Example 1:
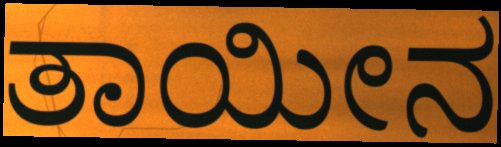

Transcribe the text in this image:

ತಾಯೀನ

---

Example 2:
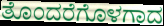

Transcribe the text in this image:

ತೊಂದರೆಗೊಳಗಾದ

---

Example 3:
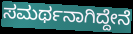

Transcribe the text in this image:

ಸಮರ್ಥನಾಗಿದ್ದೇನೆ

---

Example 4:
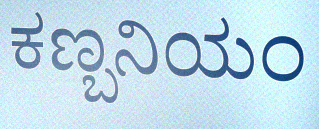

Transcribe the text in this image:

ಕಣ್ಬನಿಯಂ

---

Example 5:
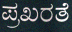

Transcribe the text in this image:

ಪ್ರಖರತೆ